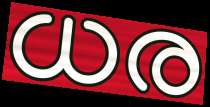
ധര